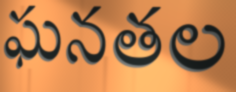
ఘనతల